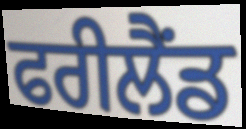
ਫਰੀਲੈਂਡ